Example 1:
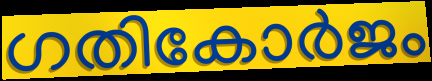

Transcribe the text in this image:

ഗതികോർജം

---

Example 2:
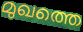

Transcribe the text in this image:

മുഖത്തെ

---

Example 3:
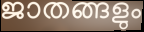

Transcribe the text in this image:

ജാതങ്ങളും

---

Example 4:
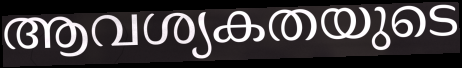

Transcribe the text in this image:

ആവശ്യകതയുടെ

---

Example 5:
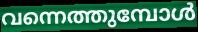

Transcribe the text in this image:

വന്നെത്തുമ്പോൾ